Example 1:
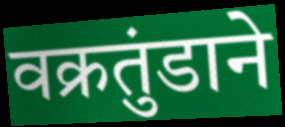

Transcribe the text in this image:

वक्रतुंडाने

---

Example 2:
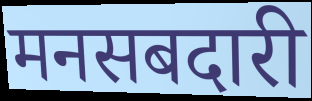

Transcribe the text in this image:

मनसबदारी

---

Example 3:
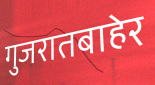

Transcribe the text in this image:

गुजरातबाहेर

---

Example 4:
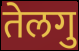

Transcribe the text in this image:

तेलगु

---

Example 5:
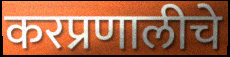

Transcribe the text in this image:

करप्रणालीचे